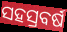
ସହସ୍ରବର୍ଷ